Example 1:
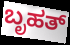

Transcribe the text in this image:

ಬೃಹತ್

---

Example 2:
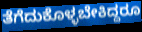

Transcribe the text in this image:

ತೆಗೆದುಕೊಳ್ಳಬೇಕಿದ್ದರೂ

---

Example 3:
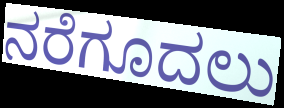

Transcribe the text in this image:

ನರೆಗೂದಲು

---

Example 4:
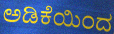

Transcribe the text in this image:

ಅಡಿಕೆಯಿಂದ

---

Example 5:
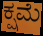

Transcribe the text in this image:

ಕ್ಷಮೆ